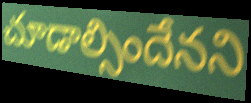
చూడాల్సిందేనని